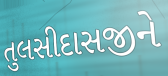
તુલસીદાસજીને